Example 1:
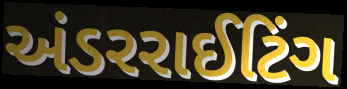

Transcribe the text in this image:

અંડરરાઈટિંગ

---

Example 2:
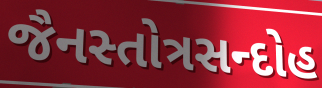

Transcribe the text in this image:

જૈનસ્તોત્રસન્દોહ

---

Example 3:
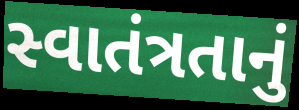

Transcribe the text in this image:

સ્વાતંત્રતાનું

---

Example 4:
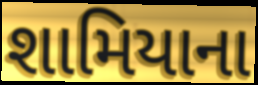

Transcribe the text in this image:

શામિયાના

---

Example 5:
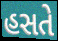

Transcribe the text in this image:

હસતે